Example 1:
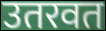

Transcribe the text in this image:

उतरवत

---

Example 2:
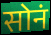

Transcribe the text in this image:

सोनं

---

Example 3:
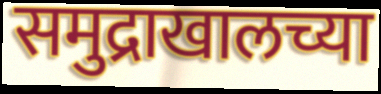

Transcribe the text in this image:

समुद्राखालच्या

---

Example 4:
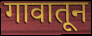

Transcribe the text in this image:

गावातून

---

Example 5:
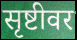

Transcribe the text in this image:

सृष्टीवर